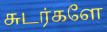
சுடர்களே